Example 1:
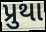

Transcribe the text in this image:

પ્રુથા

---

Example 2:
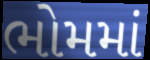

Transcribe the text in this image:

ભોમમાં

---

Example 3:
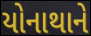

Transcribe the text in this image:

યોનાથાને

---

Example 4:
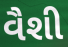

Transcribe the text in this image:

વૈશી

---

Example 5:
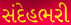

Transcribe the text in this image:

સંદેહભરી